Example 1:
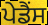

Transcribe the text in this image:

ਪੇਡੈਂਸ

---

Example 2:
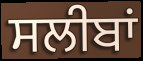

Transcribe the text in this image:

ਸਲੀਬਾਂ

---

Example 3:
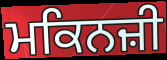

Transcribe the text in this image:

ਮਕਿਨਜ਼ੀ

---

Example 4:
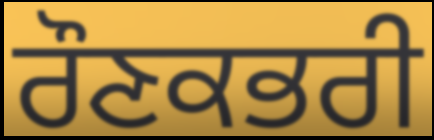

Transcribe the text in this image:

ਰੌਣਕਭਰੀ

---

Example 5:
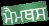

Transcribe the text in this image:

ਮੈਮਥਸ